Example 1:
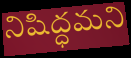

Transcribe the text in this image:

నిషిద్ధమని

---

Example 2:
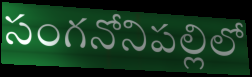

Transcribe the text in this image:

సంగనోనిపల్లిలో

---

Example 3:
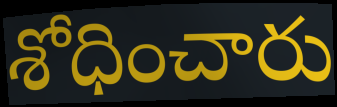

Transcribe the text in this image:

శోధించారు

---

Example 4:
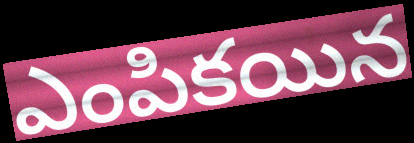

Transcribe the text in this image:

ఎంపికయిన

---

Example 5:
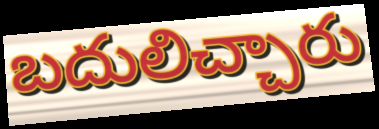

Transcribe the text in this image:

బదులిచ్చారు